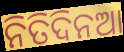
ନିତିଦିନଆ